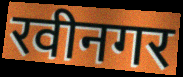
रवीनगर